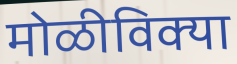
मोळीविक्या